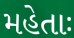
મહેતાઃ